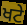
ਖਟੇ